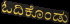
ಓದಿಕೊಂಡು